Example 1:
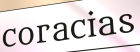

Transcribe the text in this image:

coracias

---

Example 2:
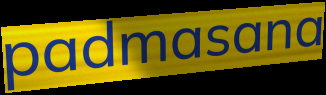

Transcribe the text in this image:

padmasana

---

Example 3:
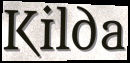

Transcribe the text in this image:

Kilda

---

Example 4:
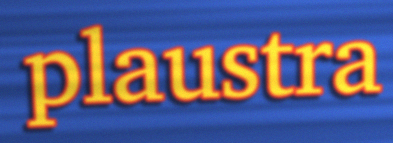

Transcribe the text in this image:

plaustra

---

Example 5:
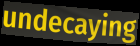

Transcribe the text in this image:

undecaying